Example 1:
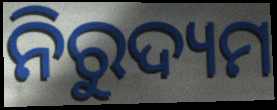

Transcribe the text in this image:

ନିରୁଦ୍ୟମ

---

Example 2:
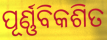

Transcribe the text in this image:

ପୂର୍ଣ୍ଣବିକଶିତ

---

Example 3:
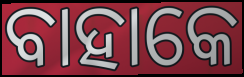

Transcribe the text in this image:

ବାହାକେ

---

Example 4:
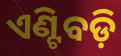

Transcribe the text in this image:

ଏଣ୍ଟିବଡ଼ି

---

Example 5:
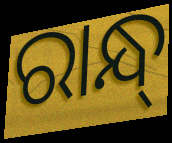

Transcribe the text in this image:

ରାନ୍ଧ୍